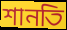
শানতি